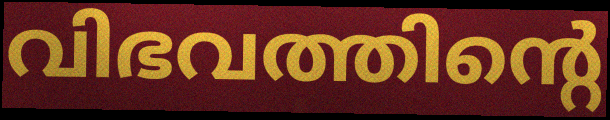
വിഭവത്തിന്റെ